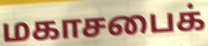
மகாசபைக்